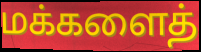
மக்களைத்